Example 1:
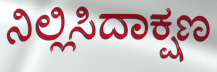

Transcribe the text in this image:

ನಿಲ್ಲಿಸಿದಾಕ್ಷಣ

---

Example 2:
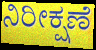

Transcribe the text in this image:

ನಿರೀಕ್ಷಣೆ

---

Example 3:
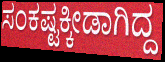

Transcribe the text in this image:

ಸಂಕಷ್ಟಕ್ಕೀಡಾಗಿದ್ದ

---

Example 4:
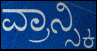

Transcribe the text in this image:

ವ್ರಾನ್ಸ್ಕಿ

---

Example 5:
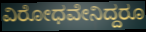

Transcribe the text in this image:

ವಿರೋಧವೇನಿದ್ದರೂ